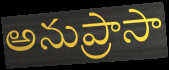
అనుప్రాసా